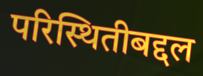
परिस्थितीबद्दल